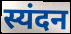
स्यंदन